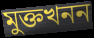
মুক্তখনন